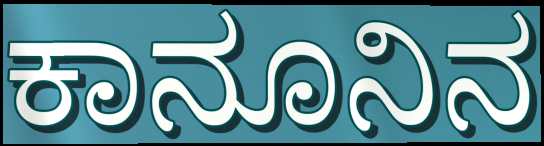
ಕಾನೂನಿನ